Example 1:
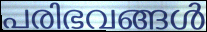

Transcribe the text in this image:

പരിഭവങ്ങൾ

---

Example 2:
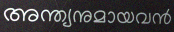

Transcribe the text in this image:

അന്ത്യനുമായവൻ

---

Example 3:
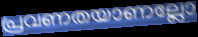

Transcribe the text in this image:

പ്രവണതയാണല്ലോ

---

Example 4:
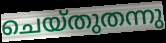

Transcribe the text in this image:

ചെയ്തുതന്നു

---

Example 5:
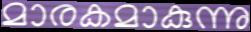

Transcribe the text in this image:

മാരകമാകുന്നു